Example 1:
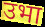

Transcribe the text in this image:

उभा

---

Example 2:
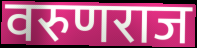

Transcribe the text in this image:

वरुणराज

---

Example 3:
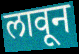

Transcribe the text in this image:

लावून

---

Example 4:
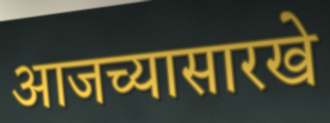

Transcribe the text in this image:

आजच्यासारखे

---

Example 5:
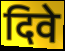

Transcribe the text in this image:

दिवे